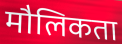
मौलिकता